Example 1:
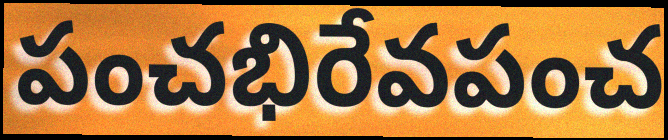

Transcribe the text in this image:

పంచభిరేవపంచ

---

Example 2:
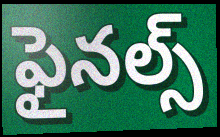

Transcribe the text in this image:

ఫైనల్స్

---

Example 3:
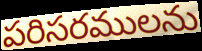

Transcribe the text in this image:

పరిసరములను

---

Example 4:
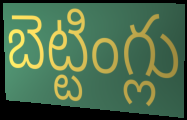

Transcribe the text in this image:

బెట్టింగ్లు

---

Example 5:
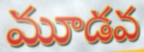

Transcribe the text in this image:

మూడవ